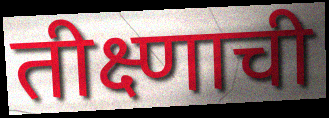
तीक्ष्णाची